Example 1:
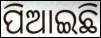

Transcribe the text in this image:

ପିଆଇଛି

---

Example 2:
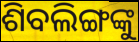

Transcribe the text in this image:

ଶିବଲିଙ୍ଗଙ୍କୁ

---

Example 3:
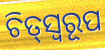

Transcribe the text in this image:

ଚିତ୍‌ସ୍ୱରୂପ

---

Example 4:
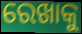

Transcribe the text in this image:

ରେଖାକୁ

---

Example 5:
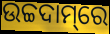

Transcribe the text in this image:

ଉଚ୍ଚଦାମ୍‌ରେ